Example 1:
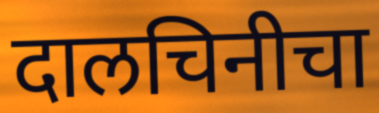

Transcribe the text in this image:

दालचिनीचा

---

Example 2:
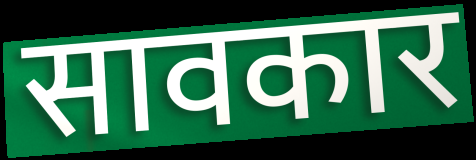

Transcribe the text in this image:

सावकार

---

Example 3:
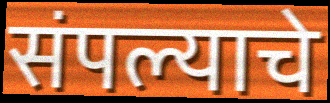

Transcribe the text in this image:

संपल्याचे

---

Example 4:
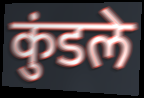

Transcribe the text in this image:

कुंडले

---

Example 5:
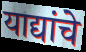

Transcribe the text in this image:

याद्यांचे